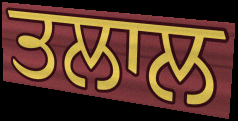
ਤਲਾਲ